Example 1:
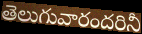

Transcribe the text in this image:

తెలుగువారందరినీ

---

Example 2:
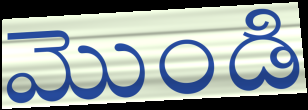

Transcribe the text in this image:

మొండి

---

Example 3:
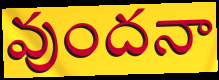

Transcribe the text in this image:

వుందనా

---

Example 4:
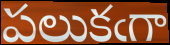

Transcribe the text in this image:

పలుకఁగా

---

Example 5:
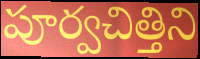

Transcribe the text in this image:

పూర్వచిత్తిని